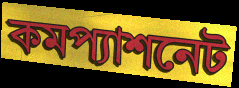
কমপ্যাশনেট